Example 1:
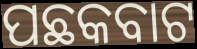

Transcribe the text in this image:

ପଛକବାଟ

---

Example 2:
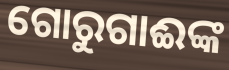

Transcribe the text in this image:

ଗୋରୁଗାଈଙ୍କ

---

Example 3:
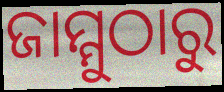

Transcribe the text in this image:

ଜାମ୍ମୁଠାରୁ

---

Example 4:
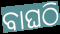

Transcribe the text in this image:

ବାଘଠି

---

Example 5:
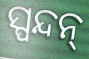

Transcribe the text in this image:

ସ୍ପନ୍ଦନ୍